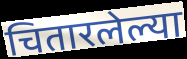
चितारलेल्या